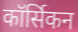
कॉर्सिकन